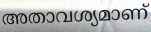
അതാവശ്യമാണ്